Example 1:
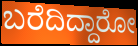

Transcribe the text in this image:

ಬರೆದಿದ್ದಾರೋ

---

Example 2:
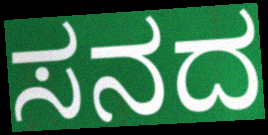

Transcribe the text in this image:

ಸನದ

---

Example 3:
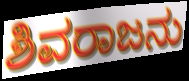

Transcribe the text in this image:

ಶಿವರಾಜನು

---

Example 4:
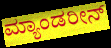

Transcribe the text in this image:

ಮ್ಯಾಂಡರೀನ್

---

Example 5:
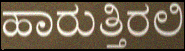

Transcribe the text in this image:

ಹಾರುತ್ತಿರಲಿ